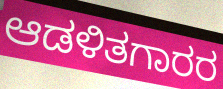
ಆಡಳಿತಗಾರರ